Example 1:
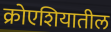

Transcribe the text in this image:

क्रोएशियातील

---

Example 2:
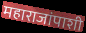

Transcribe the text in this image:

महाराजांपाशी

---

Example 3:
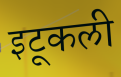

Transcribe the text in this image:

इटूकली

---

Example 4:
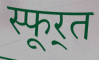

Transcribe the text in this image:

स्फूर्त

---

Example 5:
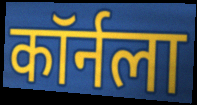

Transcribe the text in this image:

कॉर्नला